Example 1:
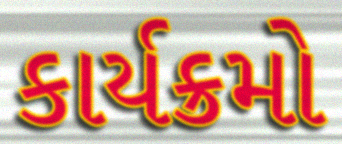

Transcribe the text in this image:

કાર્યક્રમો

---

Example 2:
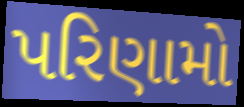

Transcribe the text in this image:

પરિણામો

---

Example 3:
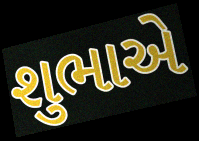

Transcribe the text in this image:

શુભાએ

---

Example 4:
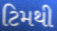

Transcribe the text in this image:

ટિમથી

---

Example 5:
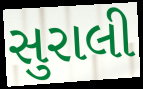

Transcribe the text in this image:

સુરાલી